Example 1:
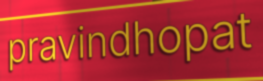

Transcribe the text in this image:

pravindhopat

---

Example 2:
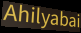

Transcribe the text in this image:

Ahilyabai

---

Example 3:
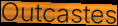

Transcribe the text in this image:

Outcastes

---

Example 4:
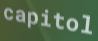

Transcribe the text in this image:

capitol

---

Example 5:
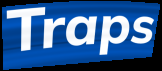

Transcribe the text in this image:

Traps